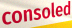
consoled